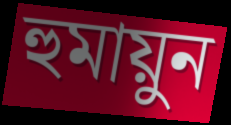
হুমায়ুন